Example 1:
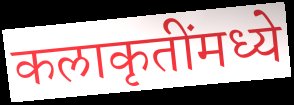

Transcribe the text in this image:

कलाकृतींमध्ये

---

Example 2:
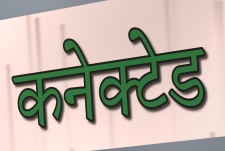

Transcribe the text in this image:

कनेक्टेड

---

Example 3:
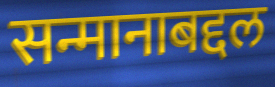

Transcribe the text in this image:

सन्मानाबद्दल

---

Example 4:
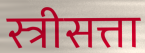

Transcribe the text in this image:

स्त्रीसत्ता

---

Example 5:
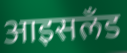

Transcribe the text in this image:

आइसलँड